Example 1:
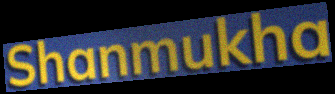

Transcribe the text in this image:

Shanmukha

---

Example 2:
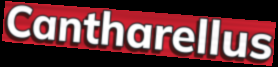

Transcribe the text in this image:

Cantharellus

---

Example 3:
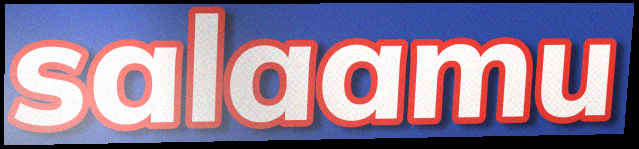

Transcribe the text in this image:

salaamu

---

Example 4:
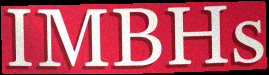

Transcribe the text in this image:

IMBHs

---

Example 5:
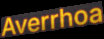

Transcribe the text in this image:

Averrhoa